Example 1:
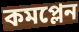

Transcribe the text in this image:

কমপ্লেন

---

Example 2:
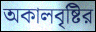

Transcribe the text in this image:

অকালবৃষ্টির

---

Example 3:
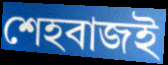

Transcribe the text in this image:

শেহবাজই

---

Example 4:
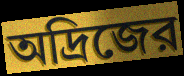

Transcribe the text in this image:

অদ্রিজের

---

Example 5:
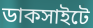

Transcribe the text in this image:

ডাকসাইটে